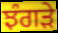
ਝੰਗੜੇ